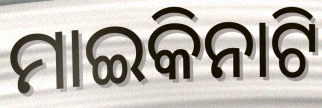
ମାଇକିନାଟି